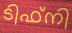
ടിഫ്നി